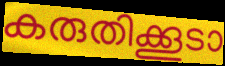
കരുതിക്കൂടാ